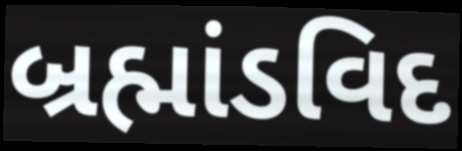
બ્રહ્માંડવિદ